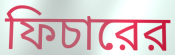
ফিচারের